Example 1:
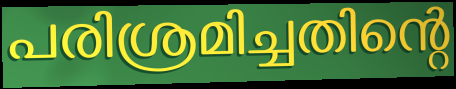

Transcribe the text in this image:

പരിശ്രമിച്ചതിന്റെ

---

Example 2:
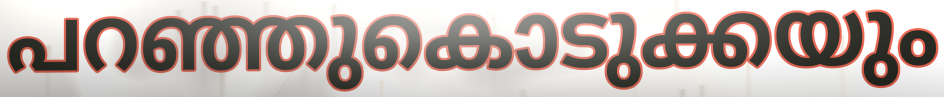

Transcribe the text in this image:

പറഞ്ഞുകൊടുക്കയും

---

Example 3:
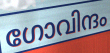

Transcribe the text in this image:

ഗോവിന്ദം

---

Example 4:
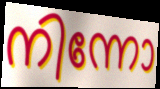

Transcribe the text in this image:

നിന്നോ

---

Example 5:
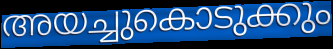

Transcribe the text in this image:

അയച്ചുകൊടുക്കും